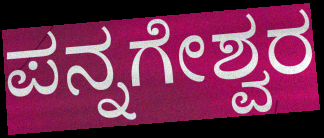
ಪನ್ನಗೇಶ್ವರ